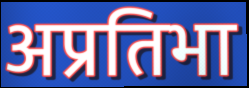
अप्रतिभा